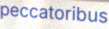
peccatoribus